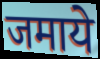
जमाये